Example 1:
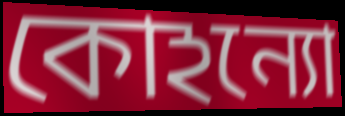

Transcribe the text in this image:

কোঽন্যো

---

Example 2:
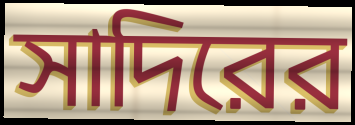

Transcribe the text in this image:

সাদিরের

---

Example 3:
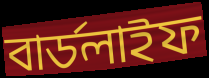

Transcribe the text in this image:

বার্ডলাইফ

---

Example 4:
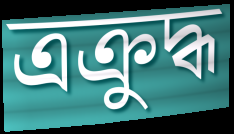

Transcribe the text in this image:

ত্রক্রুদ্ধ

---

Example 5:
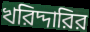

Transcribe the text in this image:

খরিদ্দারির